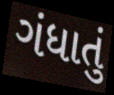
ગંધાતું